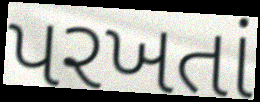
પરખતાં